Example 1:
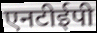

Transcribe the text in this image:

एनटीईपी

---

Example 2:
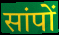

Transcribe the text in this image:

सांपों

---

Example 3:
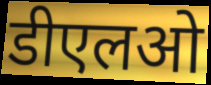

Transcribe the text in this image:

डीएलओ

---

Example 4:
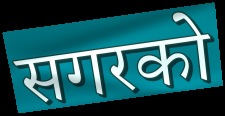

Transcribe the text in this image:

सगरको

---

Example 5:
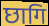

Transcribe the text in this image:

छागि